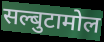
सल्बुटामोल